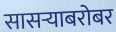
सासऱ्याबरोबर